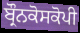
ਬ੍ਰੌਨਕੋਸਕੋਪੀ